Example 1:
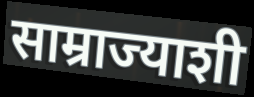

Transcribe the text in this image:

साम्राज्याशी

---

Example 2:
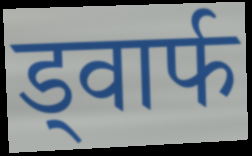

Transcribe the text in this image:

ड्वार्फ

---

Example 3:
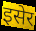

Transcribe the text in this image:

इसेर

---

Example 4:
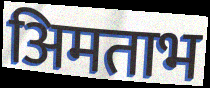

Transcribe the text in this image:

अिमताभ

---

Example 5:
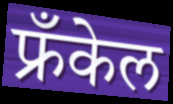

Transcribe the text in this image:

फ्रँकेल